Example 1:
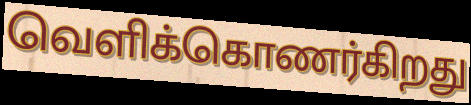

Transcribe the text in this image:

வெளிக்கொணர்கிறது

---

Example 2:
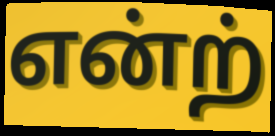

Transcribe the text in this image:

என்ற்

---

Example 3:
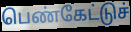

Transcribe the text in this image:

பெண்கேட்டுச்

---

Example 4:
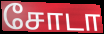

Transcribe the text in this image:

சோடா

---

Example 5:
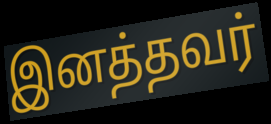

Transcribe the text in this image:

இனத்தவர்